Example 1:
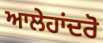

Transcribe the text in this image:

ਆਲੇਹਾਂਦਰੋ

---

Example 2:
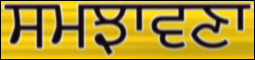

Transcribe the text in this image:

ਸਮਝਾਵਣਾ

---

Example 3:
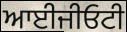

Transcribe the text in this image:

ਆਈਜੀਓਟੀ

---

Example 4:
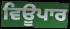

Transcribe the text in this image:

ਵਿਊਪਾਰ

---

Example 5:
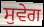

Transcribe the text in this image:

ਸੁਵੇਗ